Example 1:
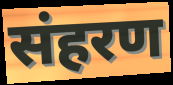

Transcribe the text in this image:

संहरण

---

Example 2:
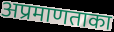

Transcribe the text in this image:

अप्रमाणताका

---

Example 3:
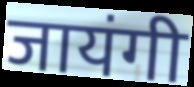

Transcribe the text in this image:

जायंगी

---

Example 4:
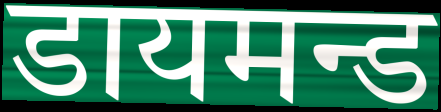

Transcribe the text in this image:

डायमन्ड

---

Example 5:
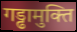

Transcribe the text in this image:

गड्ढामुक्ति